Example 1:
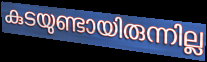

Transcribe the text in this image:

കുടയുണ്ടായിരുന്നില്ല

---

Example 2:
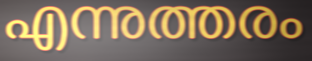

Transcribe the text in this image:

എന്നുത്തരം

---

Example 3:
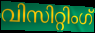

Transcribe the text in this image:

വിസിറ്റിംഗ്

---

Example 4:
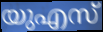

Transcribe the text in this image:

യുഎസ്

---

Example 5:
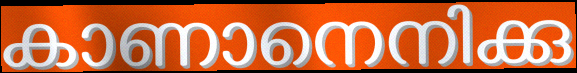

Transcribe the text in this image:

കാണാനെനിക്കു